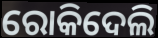
ରୋକିଦେଲି